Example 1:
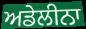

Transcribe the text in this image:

ਅਡੇਲੀਨਾ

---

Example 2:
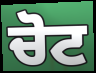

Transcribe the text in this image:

ਚੋਟ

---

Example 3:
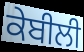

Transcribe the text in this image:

ਕੇਬੀਲੀ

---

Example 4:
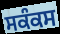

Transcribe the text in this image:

ਸਕੰਕਸ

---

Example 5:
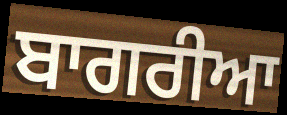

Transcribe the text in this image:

ਬਾਗਰੀਆ